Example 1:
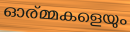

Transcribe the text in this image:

ഓര്മ്മകളെയും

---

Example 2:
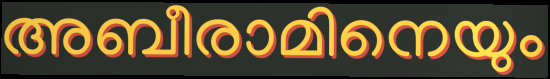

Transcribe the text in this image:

അബീരാമിനെയും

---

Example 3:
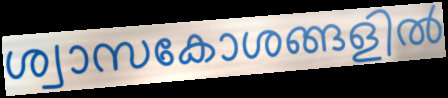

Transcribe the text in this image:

ശ്വാസകോശങ്ങളിൽ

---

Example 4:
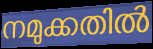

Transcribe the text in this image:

നമുക്കതിൽ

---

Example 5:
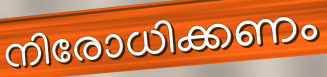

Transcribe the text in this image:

നിരോധിക്കണം